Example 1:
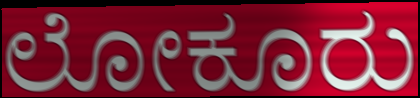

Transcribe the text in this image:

ಲೋಕೂರು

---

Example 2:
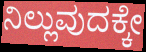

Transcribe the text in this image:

ನಿಲ್ಲುವುದಕ್ಕೇ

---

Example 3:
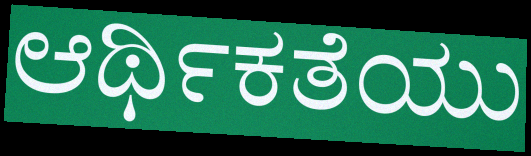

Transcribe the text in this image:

ಆರ್ಥಿಕತೆಯು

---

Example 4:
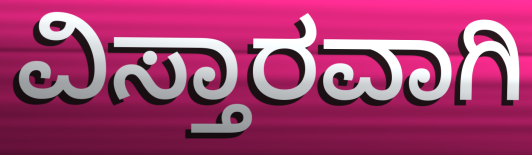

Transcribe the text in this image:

ವಿಸ್ತಾರವಾಗಿ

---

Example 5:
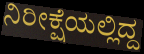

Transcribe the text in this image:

ನಿರೀಕ್ಷೆಯಲ್ಲಿದ್ದ